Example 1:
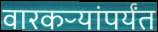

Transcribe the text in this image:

वारकऱ्यांपर्यंत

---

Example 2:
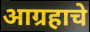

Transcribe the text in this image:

आग्रहाचे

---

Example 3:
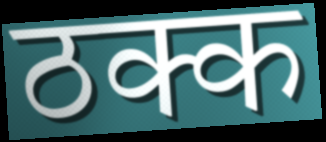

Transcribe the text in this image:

ठक्क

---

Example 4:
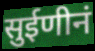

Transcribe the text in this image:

सुईणीनं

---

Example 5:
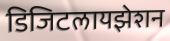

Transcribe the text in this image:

डिजिटलायझेशन